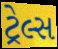
ટ્રેલ્સ